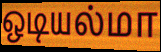
ஒடியல்மா